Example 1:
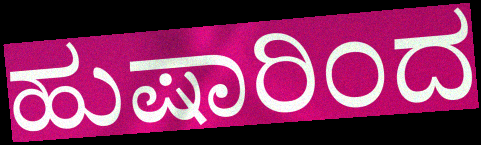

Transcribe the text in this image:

ಹುಷಾರಿಂದ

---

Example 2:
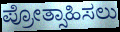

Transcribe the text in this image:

ಪ್ರೋತ್ಸಾಹಿಸಲು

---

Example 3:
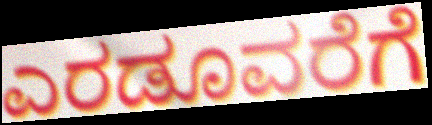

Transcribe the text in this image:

ಎರಡೂವರೆಗೆ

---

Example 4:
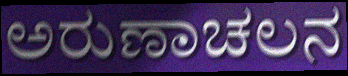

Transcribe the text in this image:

ಅರುಣಾಚಲನ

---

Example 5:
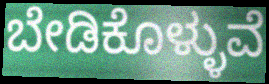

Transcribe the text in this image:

ಬೇಡಿಕೊಳ್ಳುವೆ